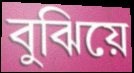
বুঝিয়ে